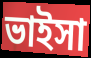
ভাইসা